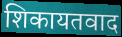
शिकायतवाद